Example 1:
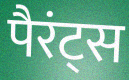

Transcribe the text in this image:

पैरंट्स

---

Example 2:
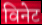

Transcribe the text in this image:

विनेट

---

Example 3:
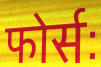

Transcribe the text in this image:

फोर्सः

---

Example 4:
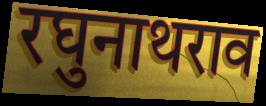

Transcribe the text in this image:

रघुनाथराव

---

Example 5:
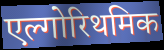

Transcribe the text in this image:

एल्गोरिथमिक